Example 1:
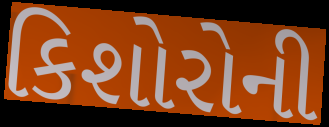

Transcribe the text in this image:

કિશોરોની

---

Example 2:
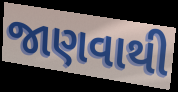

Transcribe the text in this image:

જાણવાથી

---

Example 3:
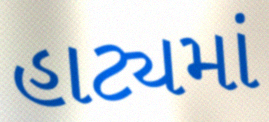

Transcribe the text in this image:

હાટ્યમાં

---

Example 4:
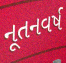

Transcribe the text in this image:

નૂતનવર્ષ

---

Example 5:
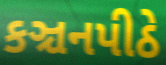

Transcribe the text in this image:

કઞ્ચનપીઠે